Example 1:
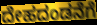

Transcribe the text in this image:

ದೇಹದಂಡನೆಗೆ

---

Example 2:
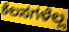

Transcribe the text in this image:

ಕೆಲಸಗಳೆಲ್ಲ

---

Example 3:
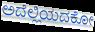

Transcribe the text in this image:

ಅದೆಲ್ಲಿಯದಕೋ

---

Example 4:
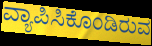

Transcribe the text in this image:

ವ್ಯಾಪಿಸಿಕೊಂಡಿರುವ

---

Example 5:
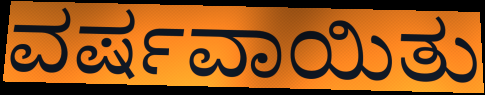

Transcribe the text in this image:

ವರ್ಷವಾಯಿತು